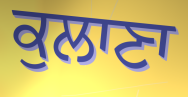
ਕੁਲਾਣਾ